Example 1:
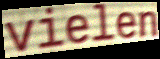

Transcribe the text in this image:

vielen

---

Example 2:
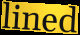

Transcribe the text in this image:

lined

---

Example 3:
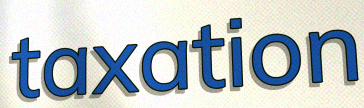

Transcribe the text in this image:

taxation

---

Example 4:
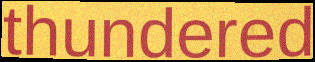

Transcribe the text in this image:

thundered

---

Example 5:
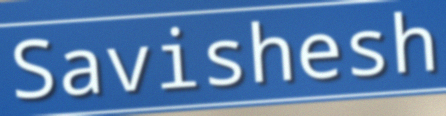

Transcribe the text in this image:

Savishesh